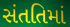
સંતતિમાં